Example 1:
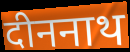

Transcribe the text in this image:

दीननाथ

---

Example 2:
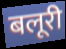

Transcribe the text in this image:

बलूरी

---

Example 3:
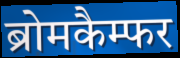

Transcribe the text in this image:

ब्रोमकैम्फर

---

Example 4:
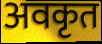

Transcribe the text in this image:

अवकृत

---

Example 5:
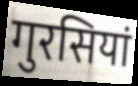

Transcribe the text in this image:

गुरसियां